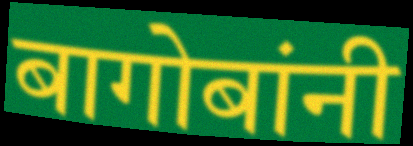
बागोबांनी